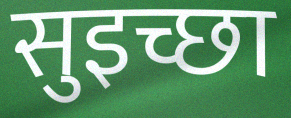
सुइच्छा